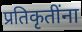
प्रतिकृतींना